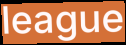
league